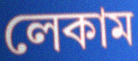
লেকাম